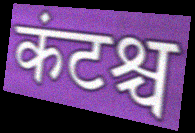
कंटश्च